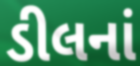
ડીલનાં